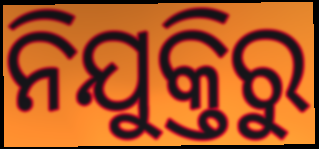
ନିଯୁକ୍ତିରୁ